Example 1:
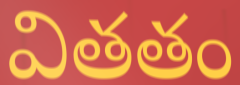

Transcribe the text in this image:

వితతం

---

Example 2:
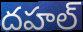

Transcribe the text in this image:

దహల్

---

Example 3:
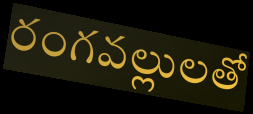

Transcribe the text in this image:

రంగవల్లులతో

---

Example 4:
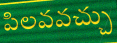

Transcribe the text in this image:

పిలవవచ్చు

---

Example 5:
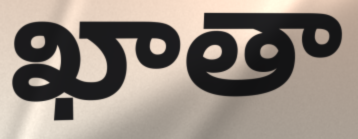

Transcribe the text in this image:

ఖాతా